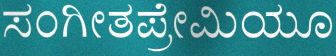
ಸಂಗೀತಪ್ರೇಮಿಯೂ